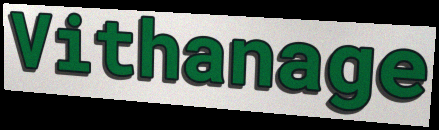
Vithanage